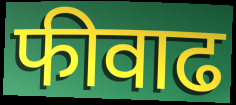
फीवाढ